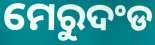
ମେରୁଦଂଡ